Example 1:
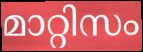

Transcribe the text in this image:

മാറ്റിസം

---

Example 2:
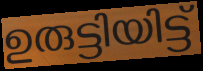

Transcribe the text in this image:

ഉരുട്ടിയിട്ട്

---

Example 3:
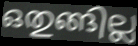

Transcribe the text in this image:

ഒതുങ്ങില്ല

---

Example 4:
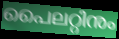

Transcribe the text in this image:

പൈലറ്റിനും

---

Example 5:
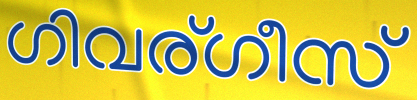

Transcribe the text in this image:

ഗിവര്ഗീസ്